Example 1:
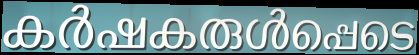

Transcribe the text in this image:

കർഷകരുൾപ്പെടെ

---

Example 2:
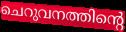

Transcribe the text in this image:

ചെറുവനത്തിന്റെ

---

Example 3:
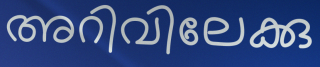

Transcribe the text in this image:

അറിവിലേക്കു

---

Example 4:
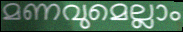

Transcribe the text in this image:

മണവുമെല്ലാം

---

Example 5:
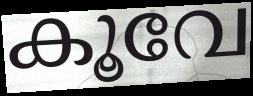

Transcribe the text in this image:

കൂവേ